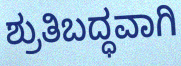
ಶ್ರುತಿಬದ್ಧವಾಗಿ